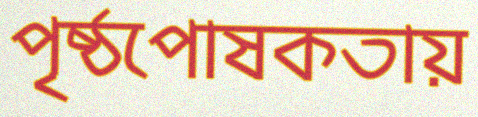
পৃষ্ঠপোষকতায়